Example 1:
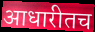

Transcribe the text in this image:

आधारीतच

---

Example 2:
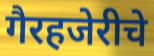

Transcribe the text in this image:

गैरहजेरीचे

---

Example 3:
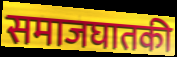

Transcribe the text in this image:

समाजघातकी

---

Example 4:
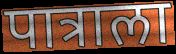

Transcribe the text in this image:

पात्राला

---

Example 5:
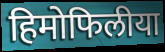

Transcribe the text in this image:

हिमोफिलीया